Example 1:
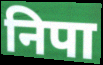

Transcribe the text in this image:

निपा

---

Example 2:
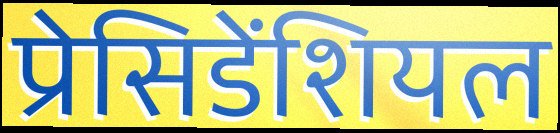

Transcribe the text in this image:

प्रेसिडेंशियल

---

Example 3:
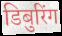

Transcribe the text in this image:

डिबुरिंग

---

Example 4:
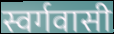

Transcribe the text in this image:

स्‍वर्गवासी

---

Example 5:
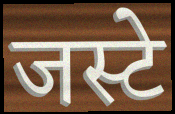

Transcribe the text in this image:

जस्टे